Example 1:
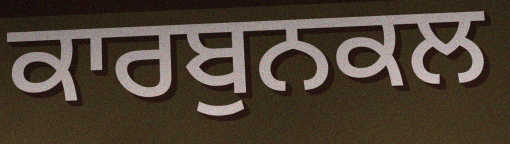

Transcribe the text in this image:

ਕਾਰਬੁਨਕਲ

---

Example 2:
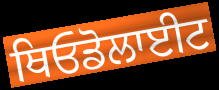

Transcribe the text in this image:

ਥਿਓਡੋਲਾਈਟ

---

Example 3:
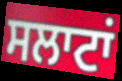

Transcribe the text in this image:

ਸਲਾਟਾਂ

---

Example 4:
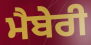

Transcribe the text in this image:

ਮੈਬੇਰੀ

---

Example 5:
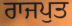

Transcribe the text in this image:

ਰਾਜਪੁਤ